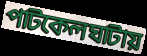
পাটকেলঘাটায়